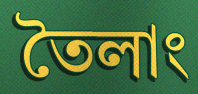
তৈলাং